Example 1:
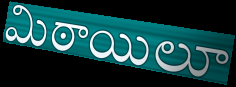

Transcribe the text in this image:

మిఠాయిలూ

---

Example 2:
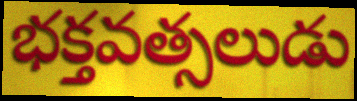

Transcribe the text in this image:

భక్తవత్సలుడు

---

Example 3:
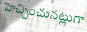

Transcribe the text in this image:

హెచ్చించునట్లుగా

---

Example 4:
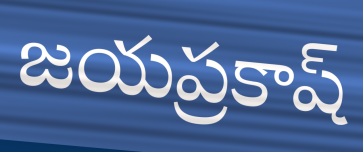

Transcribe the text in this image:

జయప్రకాష్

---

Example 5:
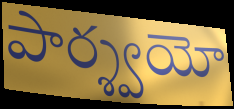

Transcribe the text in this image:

పార్శ్వయో